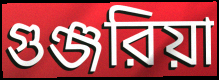
গুঞ্জরিয়া